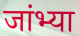
जांभ्या